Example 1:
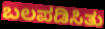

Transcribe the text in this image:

ಬಲಪಡಿಸಿತು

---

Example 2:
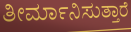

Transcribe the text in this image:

ತೀರ್ಮಾನಿಸುತ್ತಾರೆ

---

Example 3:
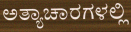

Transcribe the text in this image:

ಅತ್ಯಾಚಾರಗಳಲ್ಲಿ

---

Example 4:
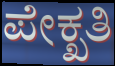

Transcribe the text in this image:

ಪೇಕ್ಖತಿ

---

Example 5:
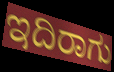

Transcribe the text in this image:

ಇದಿರಾಗು